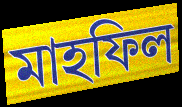
মাহফিল